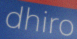
dhiro